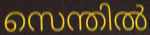
സെന്തിൽ